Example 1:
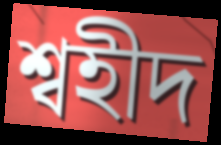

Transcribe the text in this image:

শ্বহীদ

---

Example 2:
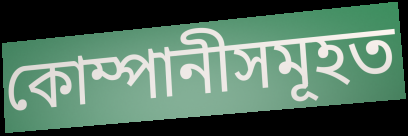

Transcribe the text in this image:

কোম্পানীসমূহত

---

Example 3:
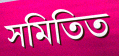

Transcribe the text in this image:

সমিতিত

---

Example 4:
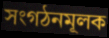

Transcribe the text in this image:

সংগঠনমূলক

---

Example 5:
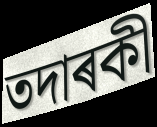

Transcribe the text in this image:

তদাৰকী